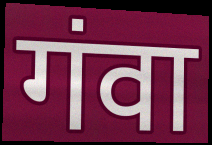
गंवा